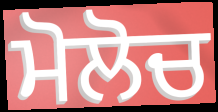
ਮੋਲੋਚ